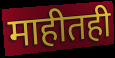
माहीतही